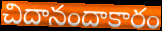
చిదానందాకారం